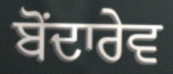
ਬੋਂਦਾਰੇਵ